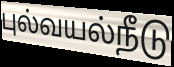
புல்வயல்நீடு